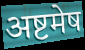
अष्टमेष